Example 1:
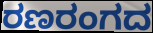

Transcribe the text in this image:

ರಣರಂಗದ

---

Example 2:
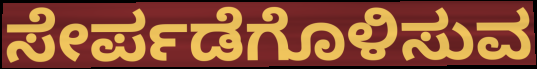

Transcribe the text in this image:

ಸೇರ್ಪಡೆಗೊಳಿಸುವ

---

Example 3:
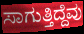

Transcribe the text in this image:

ಸಾಗುತ್ತಿದ್ದೆವು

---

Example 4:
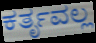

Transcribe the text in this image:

ಕರ್ತೃವಲ್ಲ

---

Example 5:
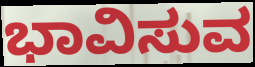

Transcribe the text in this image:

ಭಾವಿಸುವ